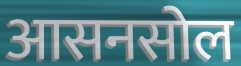
आसनसोल